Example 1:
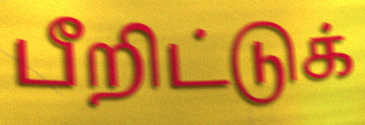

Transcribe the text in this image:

பீறிட்டுக்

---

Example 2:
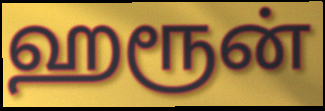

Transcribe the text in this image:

ஹரூன்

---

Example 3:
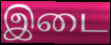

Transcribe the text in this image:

இடை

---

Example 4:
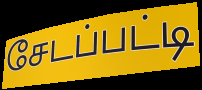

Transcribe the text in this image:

சேடப்பட்டி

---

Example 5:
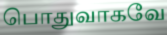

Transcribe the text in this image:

பொதுவாகவே